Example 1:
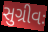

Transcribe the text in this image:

સુગ્રીવઃ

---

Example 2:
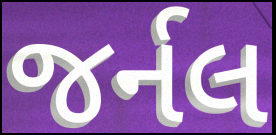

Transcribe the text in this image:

જર્નલ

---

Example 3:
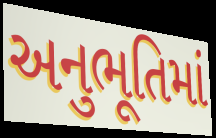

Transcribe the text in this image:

અનુભૂતિમાં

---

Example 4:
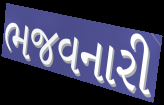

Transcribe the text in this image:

ભજવનારી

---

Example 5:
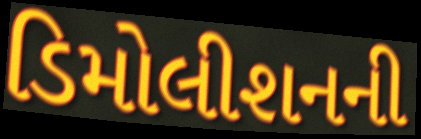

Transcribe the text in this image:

ડિમોલીશનની